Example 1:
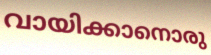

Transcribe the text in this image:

വായിക്കാനൊരു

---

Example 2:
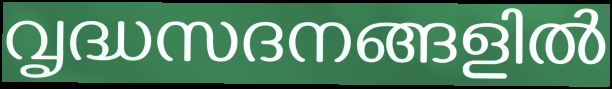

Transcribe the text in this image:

വൃദ്ധസദനങ്ങളിൽ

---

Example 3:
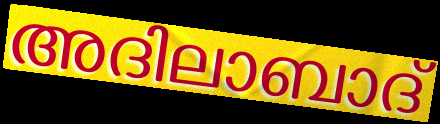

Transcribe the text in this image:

അദിലാബാദ്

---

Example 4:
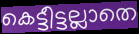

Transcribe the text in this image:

കെട്ടീട്ടല്ലാതെ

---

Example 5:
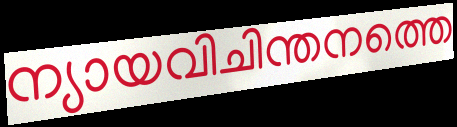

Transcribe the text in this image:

ന്യായവിചിന്തനത്തെ